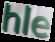
hle